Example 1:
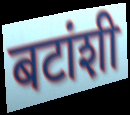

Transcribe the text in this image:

बटांशी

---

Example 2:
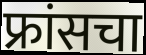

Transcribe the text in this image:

फ्रांसचा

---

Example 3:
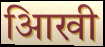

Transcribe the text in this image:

आिखी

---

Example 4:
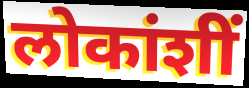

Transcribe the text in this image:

लोकांशीं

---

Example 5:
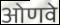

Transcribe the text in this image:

ओणवे